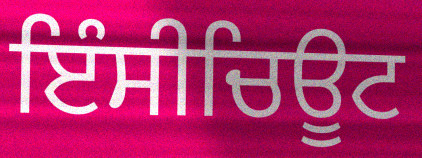
ਇੰਸੀਚਿਊਟ